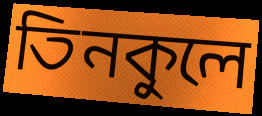
তিনকুলে